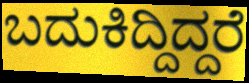
ಬದುಕಿದ್ದಿದ್ದರೆ